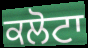
ਕਲੋਟਾ